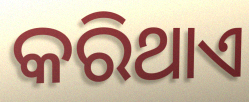
କରିଥାଏ